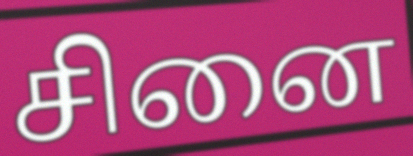
சினை